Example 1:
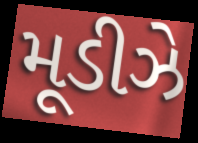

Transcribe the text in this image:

મૂડીઝે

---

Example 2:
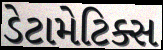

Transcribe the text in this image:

ડેટામેટિક્સ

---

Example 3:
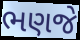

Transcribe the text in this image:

ભણજે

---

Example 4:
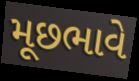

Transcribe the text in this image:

મૂછભાવે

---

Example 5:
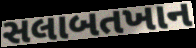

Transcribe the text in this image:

સલાબતખાન